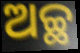
ଅଚ୍ଛ